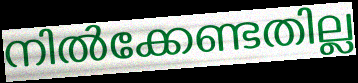
നിൽക്കേണ്ടതില്ല